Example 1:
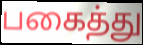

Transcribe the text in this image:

பகைத்து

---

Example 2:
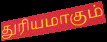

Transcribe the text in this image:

துரியமாகும்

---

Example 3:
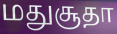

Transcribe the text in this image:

மதுசூதா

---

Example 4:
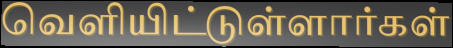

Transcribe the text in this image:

வெளியிட்டுள்ளார்கள்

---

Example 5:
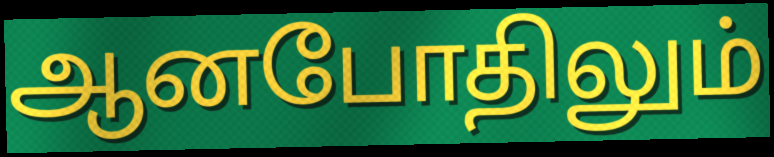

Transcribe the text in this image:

ஆனபோதிலும்